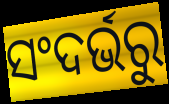
ସଂଦର୍ଭରୁ